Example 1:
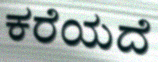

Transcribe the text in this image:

ಕರೆಯದೆ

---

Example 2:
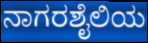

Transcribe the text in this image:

ನಾಗರಶೈಲಿಯ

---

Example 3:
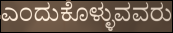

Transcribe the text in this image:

ಎಂದುಕೊಳ್ಳುವವರು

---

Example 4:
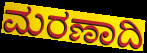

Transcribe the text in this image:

ಮರಣಾದಿ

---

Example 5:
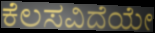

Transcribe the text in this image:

ಕೆಲಸವಿದೆಯೇ